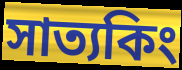
সাত্যকিং